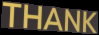
THANK